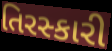
તિરસ્કારી